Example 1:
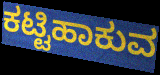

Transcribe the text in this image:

ಕಟ್ಟಿಹಾಕುವ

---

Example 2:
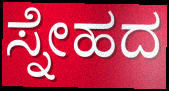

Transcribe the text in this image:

ಸ್ನೇಹದ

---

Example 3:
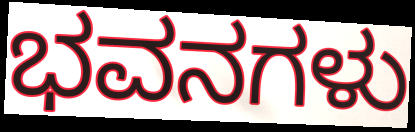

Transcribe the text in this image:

ಭವನಗಳು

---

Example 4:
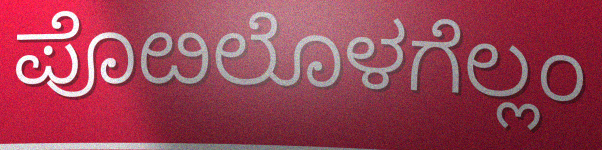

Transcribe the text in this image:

ಪೊೞಲೊಳಗೆಲ್ಲಂ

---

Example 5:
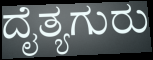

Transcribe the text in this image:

ದೈತ್ಯಗುರು